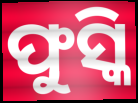
ଫୁସ୍କି